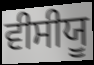
ਵੀਸੀਯੂ